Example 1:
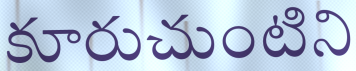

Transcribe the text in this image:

కూరుచుంటిని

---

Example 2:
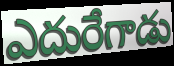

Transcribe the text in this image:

ఎదురేగాడు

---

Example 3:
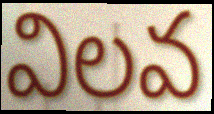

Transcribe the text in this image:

విలవ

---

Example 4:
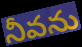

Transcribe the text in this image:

నీవను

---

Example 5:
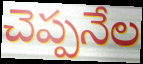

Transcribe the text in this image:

చెప్పనేల